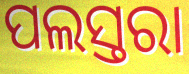
ପଲସ୍ତରା